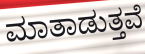
ಮಾತಾಡುತ್ತವೆ